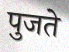
पुजते